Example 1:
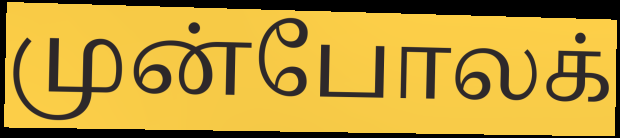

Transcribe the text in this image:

முன்போலக்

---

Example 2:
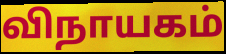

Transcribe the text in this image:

விநாயகம்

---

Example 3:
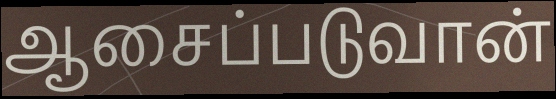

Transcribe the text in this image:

ஆசைப்படுவான்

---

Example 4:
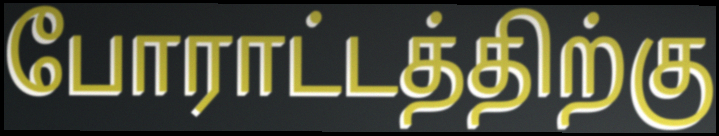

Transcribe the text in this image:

போராட்டத்திற்கு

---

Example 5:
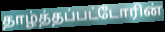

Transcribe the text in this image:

தாழ்த்தப்பட்டோரின்